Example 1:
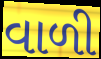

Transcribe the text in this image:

વાળી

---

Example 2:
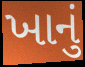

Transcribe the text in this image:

ખાનું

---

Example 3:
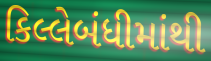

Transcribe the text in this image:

કિલ્લેબંધીમાંથી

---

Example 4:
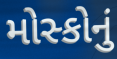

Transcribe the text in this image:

મોસ્કોનું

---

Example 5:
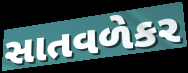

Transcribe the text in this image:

સાતવળેકર